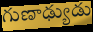
గుణాఢ్యుడు